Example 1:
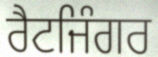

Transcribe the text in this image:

ਰੈਟਜਿੰਗਰ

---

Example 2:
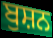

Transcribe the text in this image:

ਬੁਸ਼ਨ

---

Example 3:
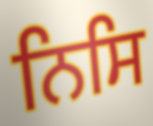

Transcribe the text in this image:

ਨਿਸਿ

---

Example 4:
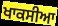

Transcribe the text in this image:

ਖਾਕਸੀਆ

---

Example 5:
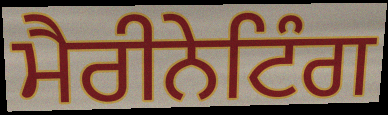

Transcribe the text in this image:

ਮੈਰੀਨੇਟਿੰਗ